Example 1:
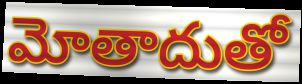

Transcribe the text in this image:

మోతాదుతో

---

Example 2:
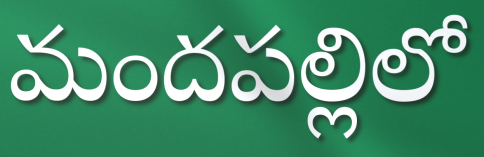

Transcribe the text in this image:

మందపల్లిలో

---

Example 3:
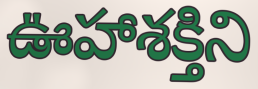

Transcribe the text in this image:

ఊహాశక్తిని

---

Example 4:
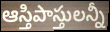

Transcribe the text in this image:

ఆస్తిపాస్తులన్నీ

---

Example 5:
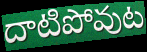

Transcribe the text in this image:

దాటిపోవుట